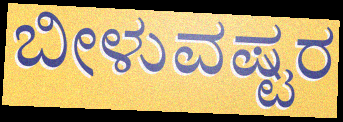
ಬೀಳುವಷ್ಟರ